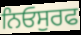
ਨਿਓਸੁਰਫ